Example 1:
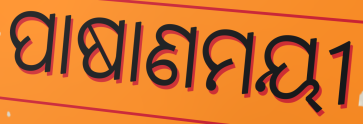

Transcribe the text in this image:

ପାଷାଣମୟୀ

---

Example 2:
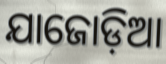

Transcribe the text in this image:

ଯାଜୋଡ଼ିଆ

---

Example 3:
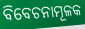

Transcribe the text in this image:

ବିବେଚନାମୂଳକ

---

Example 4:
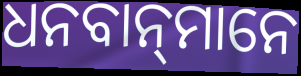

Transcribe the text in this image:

ଧନବାନ୍‍ମାନେ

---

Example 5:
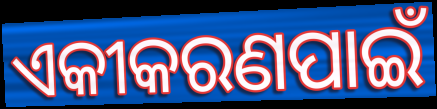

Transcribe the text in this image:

ଏକୀକରଣପାଇଁ